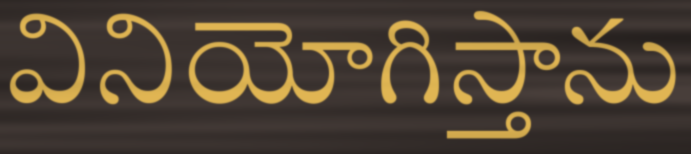
వినియోగిస్తాను